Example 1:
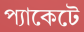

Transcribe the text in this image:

প্যাকেটে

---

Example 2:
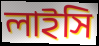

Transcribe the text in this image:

লাইসি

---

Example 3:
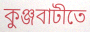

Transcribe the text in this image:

কুঞ্জবাটীতে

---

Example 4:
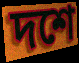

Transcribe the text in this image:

দশে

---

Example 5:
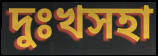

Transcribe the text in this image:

দুঃখসহা